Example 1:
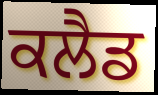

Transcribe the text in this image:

ਕਲੈਡ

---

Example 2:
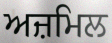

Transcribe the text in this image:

ਅਜ਼ਮਿਲ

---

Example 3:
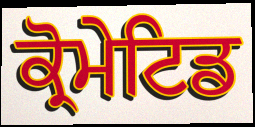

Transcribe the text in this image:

ਕ੍ਰੋਮੇਟਿਡ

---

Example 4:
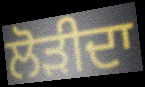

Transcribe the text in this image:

ਲੋੜੀਦਾ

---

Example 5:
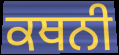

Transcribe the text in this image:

ਕਥਨੀ